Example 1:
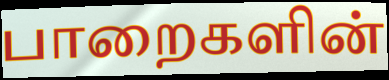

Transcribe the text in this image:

பாறைகளின்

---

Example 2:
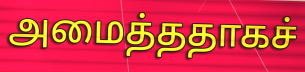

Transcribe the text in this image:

அமைத்ததாகச்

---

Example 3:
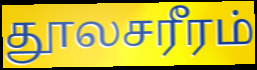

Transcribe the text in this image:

தூலசரீரம்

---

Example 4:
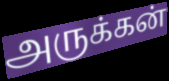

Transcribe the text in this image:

அருக்கன்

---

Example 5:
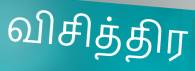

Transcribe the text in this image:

விசித்திர